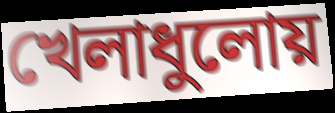
খেলাধুলোয়